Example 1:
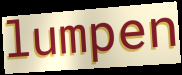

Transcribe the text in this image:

lumpen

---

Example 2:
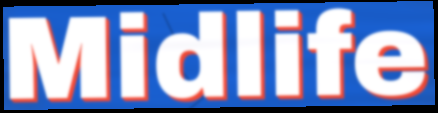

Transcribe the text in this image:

Midlife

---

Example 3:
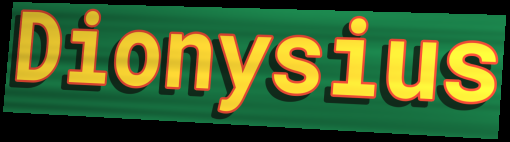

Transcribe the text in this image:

Dionysius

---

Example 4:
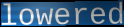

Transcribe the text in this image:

lowered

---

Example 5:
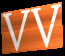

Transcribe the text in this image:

VV